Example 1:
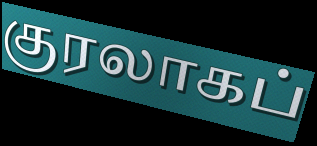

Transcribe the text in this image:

குரலாகப்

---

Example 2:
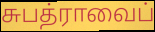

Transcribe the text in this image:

சுபத்ராவைப்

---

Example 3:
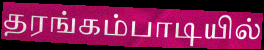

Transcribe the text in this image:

தரங்கம்பாடியில்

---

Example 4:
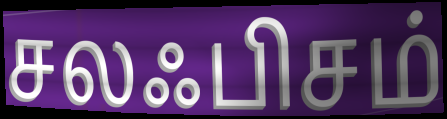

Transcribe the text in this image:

சலஃபிசம்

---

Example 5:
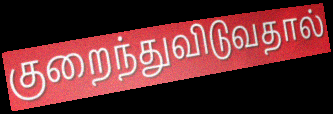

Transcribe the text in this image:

குறைந்துவிடுவதால்